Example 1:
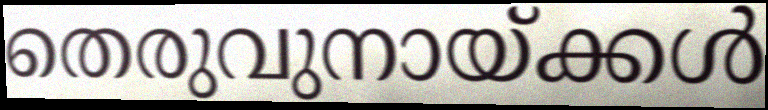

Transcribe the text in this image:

തെരുവുനായ്ക്കൾ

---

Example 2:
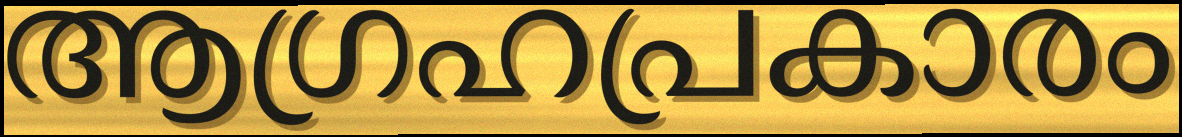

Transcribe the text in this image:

ആഗ്രഹപ്രകാരം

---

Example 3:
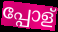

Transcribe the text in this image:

പ്പോള്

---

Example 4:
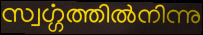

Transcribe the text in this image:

സ്വൎഗ്ഗത്തിൽനിന്നു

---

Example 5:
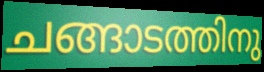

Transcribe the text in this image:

ചങ്ങാടത്തിനു